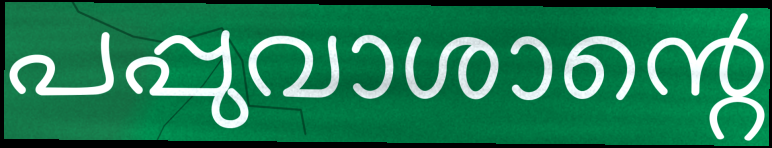
പപ്പുവാശാന്റെ